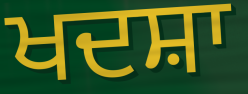
ਖਦਸ਼ਾ